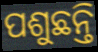
ପଶୁଛନ୍ତି